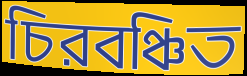
চিরবঞ্চিত